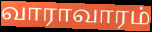
வாராவாரம்